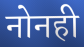
नोनही